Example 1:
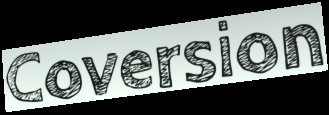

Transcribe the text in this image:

Coversion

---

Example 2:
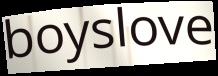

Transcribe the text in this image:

boyslove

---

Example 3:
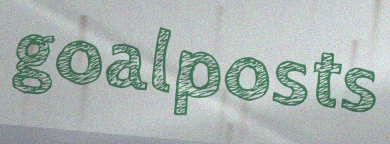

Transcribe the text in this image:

goalposts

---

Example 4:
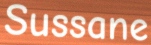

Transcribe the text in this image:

Sussane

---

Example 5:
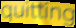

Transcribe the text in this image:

quitting